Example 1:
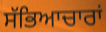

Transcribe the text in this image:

ਸੱਭਿਆਚਾਰਾਂ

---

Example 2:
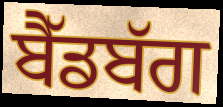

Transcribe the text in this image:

ਬੈੱਡਬੱਗ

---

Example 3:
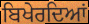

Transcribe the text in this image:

ਬਿਖੇਰਦਿਆਂ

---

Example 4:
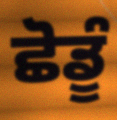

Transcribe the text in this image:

ਛੋਡੂੰ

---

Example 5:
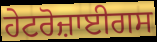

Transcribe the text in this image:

ਹੇਟਰੋਜ਼ਾਈਗਸ